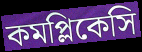
কমপ্লিকেসি